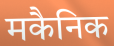
मकैनिक